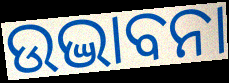
ଉଦ୍ଭାବନା